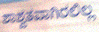
ಶಾಶ್ವತವಾಗಿರಲಿಲ್ಲ